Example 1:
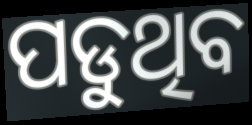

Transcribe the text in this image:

ପଡୁଥିବ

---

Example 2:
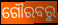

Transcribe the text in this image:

ଗୌରବରୁ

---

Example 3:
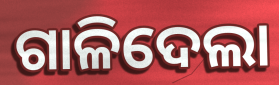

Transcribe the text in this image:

ଗାଳିଦେଲା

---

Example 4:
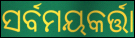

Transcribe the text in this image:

ସର୍ବମୟକର୍ତ୍ତା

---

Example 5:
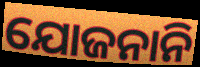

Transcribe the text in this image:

ଯୋଜନାନି